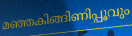
മഞ്ഞകിങ്ങിണിപ്പൂവും